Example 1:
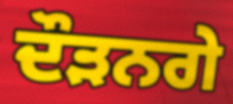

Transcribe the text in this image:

ਦੌੜਨਗੇ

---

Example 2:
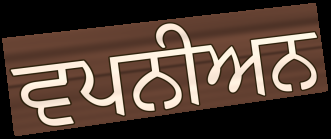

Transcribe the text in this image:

ਵਪਨੀਅਨ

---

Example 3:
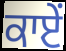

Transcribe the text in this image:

ਕਾਏਂ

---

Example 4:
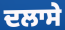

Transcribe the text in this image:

ਦਲਾਸੇ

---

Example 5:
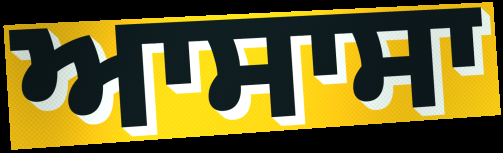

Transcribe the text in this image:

ਆਸਾਸਾ